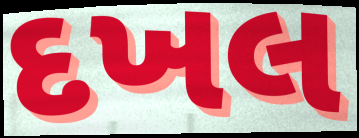
દખલ